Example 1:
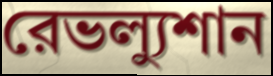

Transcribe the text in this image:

রেভল্যুশান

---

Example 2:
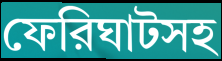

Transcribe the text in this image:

ফেরিঘাটসহ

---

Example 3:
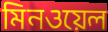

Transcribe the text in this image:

মিনওয়েল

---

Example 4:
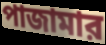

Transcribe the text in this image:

পাজামার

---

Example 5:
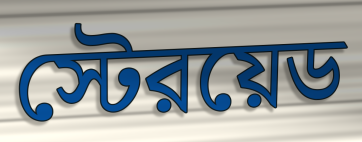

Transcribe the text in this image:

স্টেরয়েড